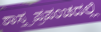
ಶಾಸ್ತ್ರಪ್ರಪಂಚದಲ್ಲಿ